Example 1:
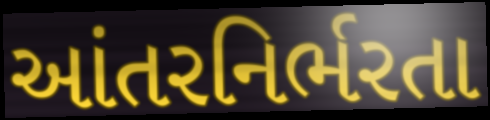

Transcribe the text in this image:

આંતરનિર્ભરતા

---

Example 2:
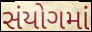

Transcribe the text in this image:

સંયોગમાં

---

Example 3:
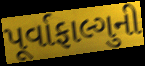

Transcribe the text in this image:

પૂર્વાફાલ્ગુની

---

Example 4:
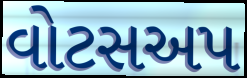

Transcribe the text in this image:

વોટસઅપ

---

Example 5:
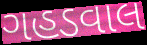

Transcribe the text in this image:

ગહડવાલ